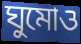
ঘুমোও